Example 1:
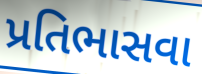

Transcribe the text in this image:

પ્રતિભાસવા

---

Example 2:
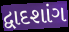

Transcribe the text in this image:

દ્વાદશાંગ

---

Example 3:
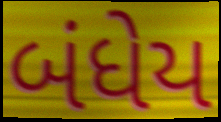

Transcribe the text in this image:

બંધેય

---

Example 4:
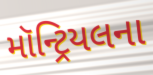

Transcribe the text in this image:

મૉન્ટ્રિયલના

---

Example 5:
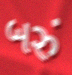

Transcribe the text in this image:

બરું